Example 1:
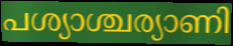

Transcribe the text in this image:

പശ്യാശ്ചര്യാണി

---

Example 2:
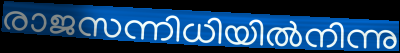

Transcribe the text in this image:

രാജസന്നിധിയിൽനിന്നു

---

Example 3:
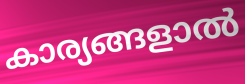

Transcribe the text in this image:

കാര്യങ്ങളാൽ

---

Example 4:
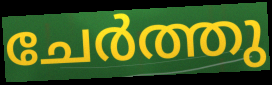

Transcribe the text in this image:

ചേർത്തു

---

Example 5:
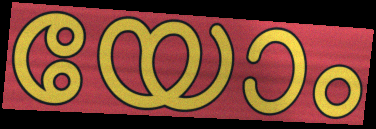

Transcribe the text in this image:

യോം